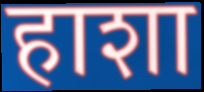
हाशा